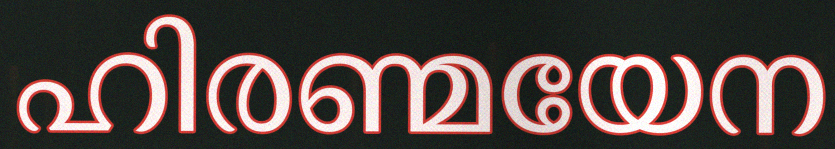
ഹിരണ്മയേന